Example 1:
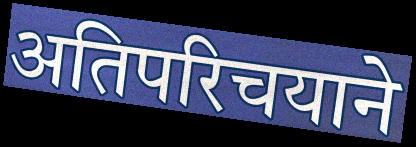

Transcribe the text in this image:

अतिपरिचयाने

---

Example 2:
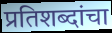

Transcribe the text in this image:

प्रतिशब्दांचा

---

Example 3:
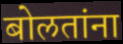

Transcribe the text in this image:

बोलतांना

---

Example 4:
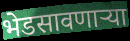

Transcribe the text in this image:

भेडसावणार्‍या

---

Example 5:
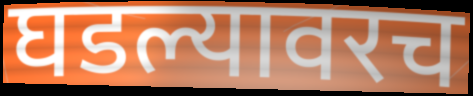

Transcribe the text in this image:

घडल्यावरच